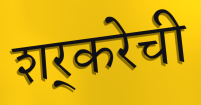
शर्करेची